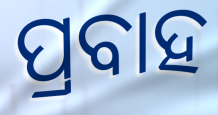
ପ୍ରବାହ